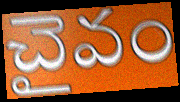
చైవం